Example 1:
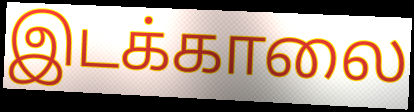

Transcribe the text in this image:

இடக்காலை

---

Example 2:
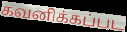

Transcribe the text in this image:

கவனிக்கப்பட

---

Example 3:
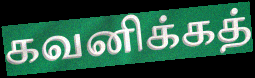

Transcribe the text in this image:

கவனிக்கத்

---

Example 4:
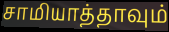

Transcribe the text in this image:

சாமியாத்தாவும்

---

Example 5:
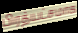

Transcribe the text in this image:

பிரத்யட்சமாக